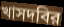
খাসদবির